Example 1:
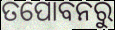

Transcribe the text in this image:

ତପୋବନରୁ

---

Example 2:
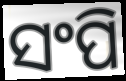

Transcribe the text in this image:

ସଂପି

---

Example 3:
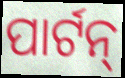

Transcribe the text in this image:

ପାର୍ଟନ୍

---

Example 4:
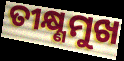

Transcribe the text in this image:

ତୀକ୍ଷ୍ଣମୁଖ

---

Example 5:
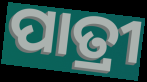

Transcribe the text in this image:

ପାତ୍ରୀ